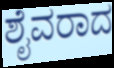
ಶೈವರಾದ